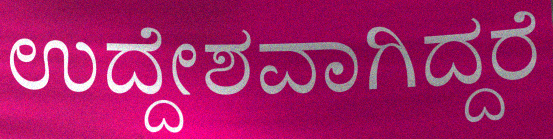
ಉದ್ದೇಶವಾಗಿದ್ದರೆ